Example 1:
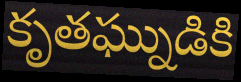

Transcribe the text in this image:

కృతఘ్నుడికి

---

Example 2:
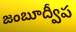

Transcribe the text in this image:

జంబూద్వీప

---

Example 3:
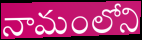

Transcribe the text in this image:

నామంలోని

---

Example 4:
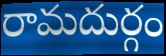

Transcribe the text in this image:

రామదుర్గం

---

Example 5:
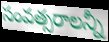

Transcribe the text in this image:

సంవత్సరాలన్నీ